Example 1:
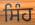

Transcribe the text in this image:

ਸਿੰਹ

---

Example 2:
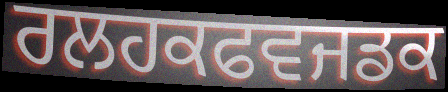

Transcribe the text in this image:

ਰਲਹਕਫਵਜਡਕ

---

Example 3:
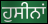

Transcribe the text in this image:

ਹੁਸੀਨਾਂ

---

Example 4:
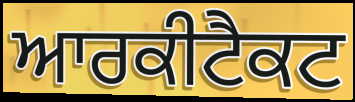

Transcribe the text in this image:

ਆਰਕੀਟੈਕਟ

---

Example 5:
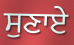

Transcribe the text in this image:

ਸੁਣਾਏ